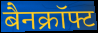
बैनक्रॉफ्ट